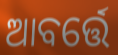
ଆବର୍ତ୍ତେ